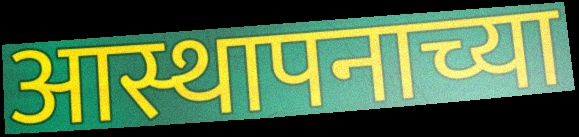
आस्थापनाच्या